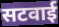
सटवाई